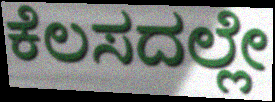
ಕೆಲಸದಲ್ಲೇ